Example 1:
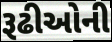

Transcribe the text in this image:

રૂઢીઓની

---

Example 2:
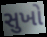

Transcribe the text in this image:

સુખો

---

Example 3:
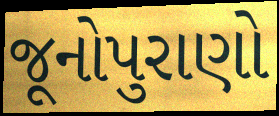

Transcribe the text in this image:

જૂનોપુરાણો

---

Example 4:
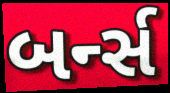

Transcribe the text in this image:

બર્ન્સ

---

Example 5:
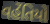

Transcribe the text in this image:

વહેંતિયો